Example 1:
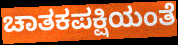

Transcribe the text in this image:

ಚಾತಕಪಕ್ಷಿಯಂತೆ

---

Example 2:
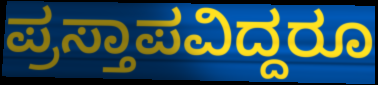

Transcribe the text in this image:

ಪ್ರಸ್ತಾಪವಿದ್ದರೂ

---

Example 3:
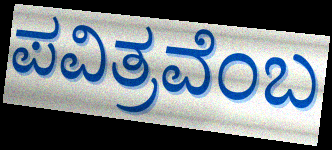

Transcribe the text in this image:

ಪವಿತ್ರವೆಂಬ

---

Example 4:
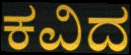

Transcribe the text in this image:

ಕವಿದ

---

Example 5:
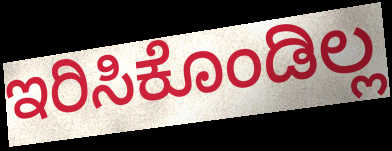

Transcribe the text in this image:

ಇರಿಸಿಕೊಂಡಿಲ್ಲ